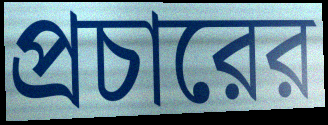
প্রচারের